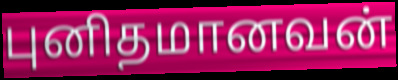
புனிதமானவன்